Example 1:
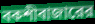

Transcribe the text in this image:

বকশীবাজারের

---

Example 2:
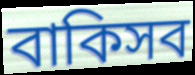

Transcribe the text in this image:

বাকিসব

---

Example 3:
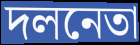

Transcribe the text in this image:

দলনেতা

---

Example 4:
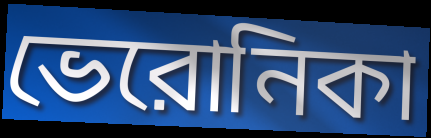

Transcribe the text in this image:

ভেরোনিকা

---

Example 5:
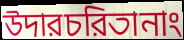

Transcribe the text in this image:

উদারচরিতানাং